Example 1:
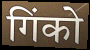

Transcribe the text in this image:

गिंको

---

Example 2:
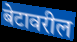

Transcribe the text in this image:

बेटावरील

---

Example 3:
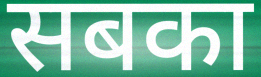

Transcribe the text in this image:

सबका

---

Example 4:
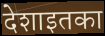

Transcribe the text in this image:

देशाइतका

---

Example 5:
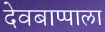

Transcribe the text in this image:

देवबाप्पाला